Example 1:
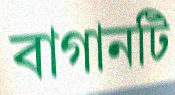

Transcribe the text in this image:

বাগানটি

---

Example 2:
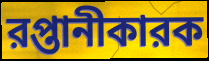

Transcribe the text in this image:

রপ্তানীকারক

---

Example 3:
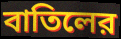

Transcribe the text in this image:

বাতিলের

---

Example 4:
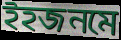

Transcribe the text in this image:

ইহজনমে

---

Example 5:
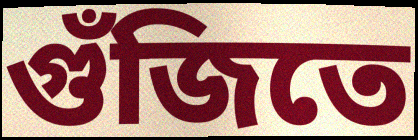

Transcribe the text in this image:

গুঁজিতে